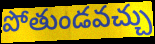
పోతుండవచ్చు